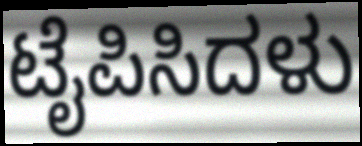
ಟೈಪಿಸಿದಳು